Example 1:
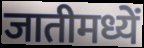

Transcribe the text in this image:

जातीमध्यें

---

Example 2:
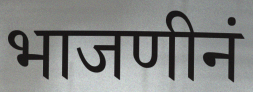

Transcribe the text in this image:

भाजणीनं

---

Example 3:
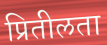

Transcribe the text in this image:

प्रितीलता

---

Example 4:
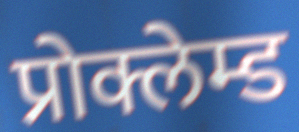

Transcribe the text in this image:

प्रोक्लेम्ड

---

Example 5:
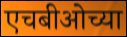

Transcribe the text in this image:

एचबीओच्या